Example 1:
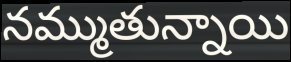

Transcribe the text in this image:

నమ్ముతున్నాయి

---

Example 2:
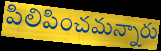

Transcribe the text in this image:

పిలిపించమన్నారు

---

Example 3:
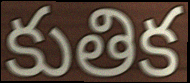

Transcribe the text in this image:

కుతిక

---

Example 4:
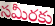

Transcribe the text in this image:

సమీరకు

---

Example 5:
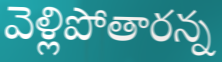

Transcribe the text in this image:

వెళ్లిపోతారన్న